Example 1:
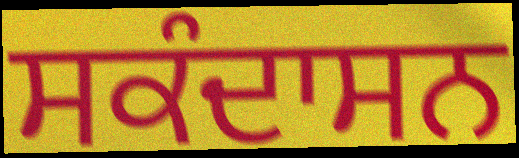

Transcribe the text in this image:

ਸਕੰਦਾਸਨ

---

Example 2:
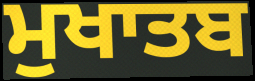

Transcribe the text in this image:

ਮੁਖਾਤਬ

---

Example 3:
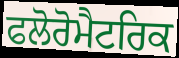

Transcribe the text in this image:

ਫਲੋਰੋਮੈਟਰਿਕ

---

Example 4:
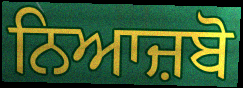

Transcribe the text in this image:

ਨਿਆਜ਼ਬੋ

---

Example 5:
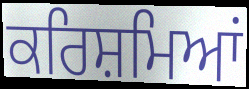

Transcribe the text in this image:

ਕਰਿਸ਼ਮਿਆਂ